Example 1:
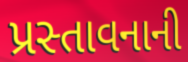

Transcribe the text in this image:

પ્રસ્તાવનાની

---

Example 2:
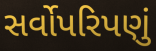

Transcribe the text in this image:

સર્વોપરિપણું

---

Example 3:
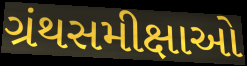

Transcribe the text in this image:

ગ્રંથસમીક્ષાઓ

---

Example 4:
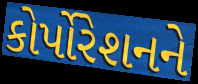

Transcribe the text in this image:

કોર્પોરેશનને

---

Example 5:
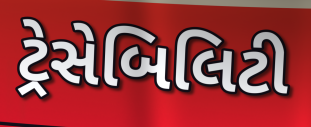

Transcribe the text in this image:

ટ્રેસેબિલિટી